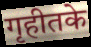
गृहीतके